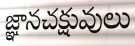
జ్ఞానచక్షువులు